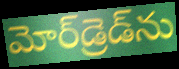
మోర్‌డ్రెడ్‌ను